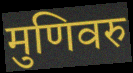
मुणिवरु